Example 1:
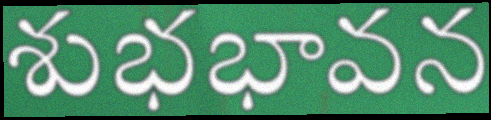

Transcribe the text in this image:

శుభభావన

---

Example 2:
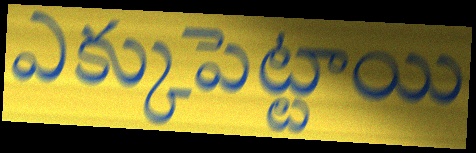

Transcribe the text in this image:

ఎక్కుపెట్టాయి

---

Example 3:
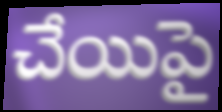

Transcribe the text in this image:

చేయిపై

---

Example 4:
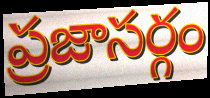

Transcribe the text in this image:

ప్రజాసర్గం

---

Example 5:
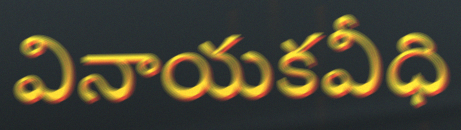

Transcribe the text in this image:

వినాయకవీధి